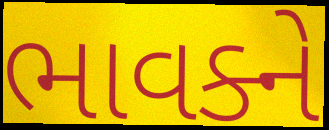
ભાવક્ને